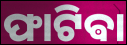
ଫାଟିଵା